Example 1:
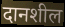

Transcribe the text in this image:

दानशील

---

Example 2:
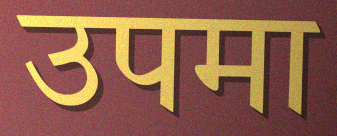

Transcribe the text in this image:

उपमा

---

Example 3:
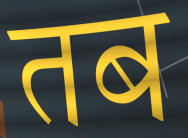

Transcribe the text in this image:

तब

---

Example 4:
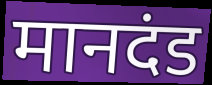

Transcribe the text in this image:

मानदंड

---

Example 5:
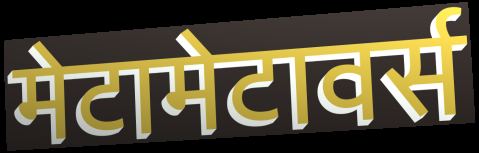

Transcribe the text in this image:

मेटामेटावर्स